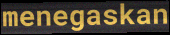
menegaskan